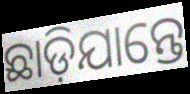
ଛାଡ଼ିଯାନ୍ତେ